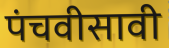
पंचवीसावी